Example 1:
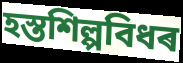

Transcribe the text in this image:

হস্তশিল্পবিধৰ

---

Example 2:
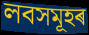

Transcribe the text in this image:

লবসমূহৰ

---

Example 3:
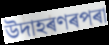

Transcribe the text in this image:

উদাহৰণৰপৰা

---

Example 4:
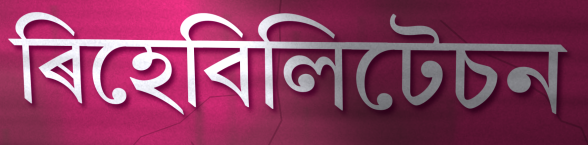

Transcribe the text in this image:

ৰিহেবিলিটেচন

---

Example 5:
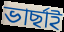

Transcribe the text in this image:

ভাৰ্ছাই